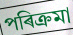
পৰিক্ৰমা